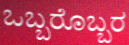
ಒಬ್ಬರೊಬ್ಬರ